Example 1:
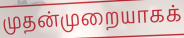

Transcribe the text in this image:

முதன்முறையாகக்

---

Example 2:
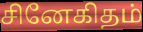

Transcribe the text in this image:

சினேகிதம்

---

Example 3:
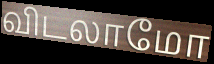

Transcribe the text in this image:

விடலாமோ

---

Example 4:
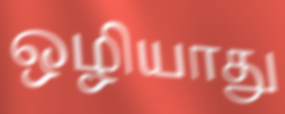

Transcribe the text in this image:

ஒழியாது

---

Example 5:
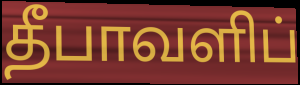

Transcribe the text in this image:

தீபாவளிப்